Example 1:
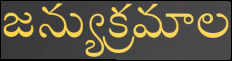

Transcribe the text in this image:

జన్యుక్రమాల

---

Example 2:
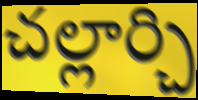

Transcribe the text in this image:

చల్లార్చి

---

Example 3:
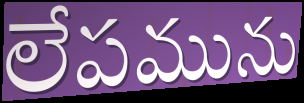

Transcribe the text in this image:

లేపమును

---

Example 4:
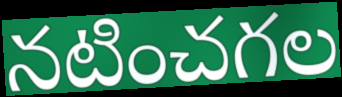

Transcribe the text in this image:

నటించగల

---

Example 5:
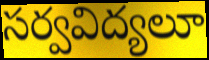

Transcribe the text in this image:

సర్వవిద్యలూ